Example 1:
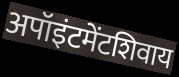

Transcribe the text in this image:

अपॉइंटमेंटशिवाय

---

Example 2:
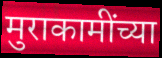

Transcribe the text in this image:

मुराकामींच्या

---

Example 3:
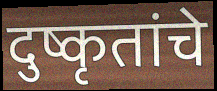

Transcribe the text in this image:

दुष्कृतांचे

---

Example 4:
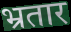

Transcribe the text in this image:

भ्रतार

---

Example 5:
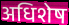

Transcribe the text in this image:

अधिशेष